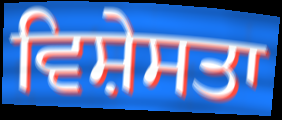
ਵਿਸ਼ੇਸਤਾ